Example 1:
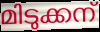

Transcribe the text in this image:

മിടുക്കന്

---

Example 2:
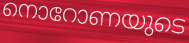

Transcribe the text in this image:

നൊറോണയുടെ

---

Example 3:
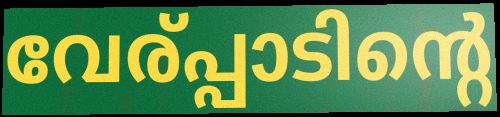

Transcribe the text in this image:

വേര്പ്പാടിന്റെ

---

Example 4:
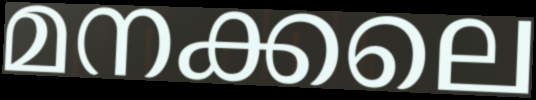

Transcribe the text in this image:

മനക്കലെ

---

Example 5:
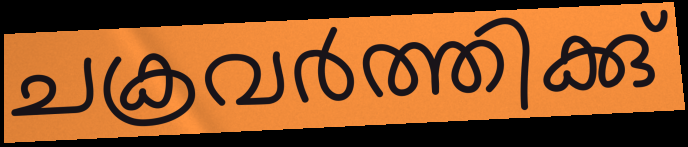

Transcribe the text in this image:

ചക്രവർത്തിക്കു്